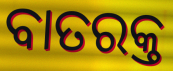
ବାତରକ୍ତ